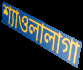
শ্যাওলালাগা